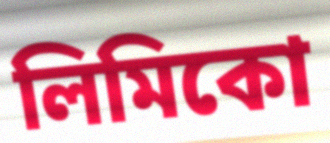
লিমিকো